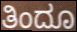
ತಿಂದೂ